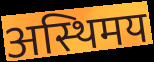
अस्थिमय